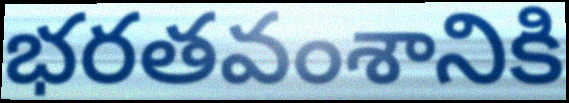
భరతవంశానికి